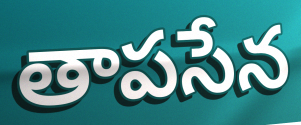
తాపసేన